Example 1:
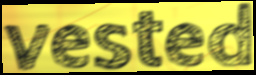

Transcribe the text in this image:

vested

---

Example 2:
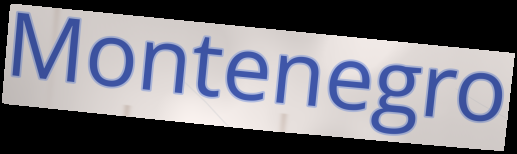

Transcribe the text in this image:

Montenegro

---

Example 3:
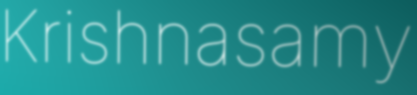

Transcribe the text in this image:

Krishnasamy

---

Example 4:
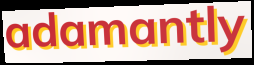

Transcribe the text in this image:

adamantly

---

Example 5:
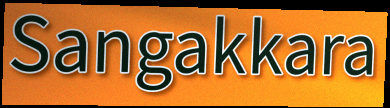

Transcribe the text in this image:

Sangakkara